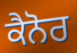
ਕੈਨੋਰ